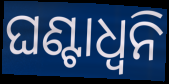
ଘଣ୍ଟାଧ୍ୱନି